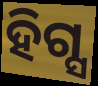
ହିଗ୍ସ